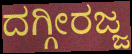
ದಗ್ಗೀರಜ್ಜ